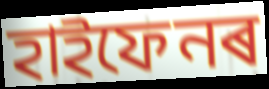
হাইফেনৰ